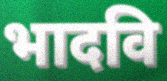
भादवि